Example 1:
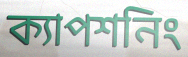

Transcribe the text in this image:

ক্যাপশনিং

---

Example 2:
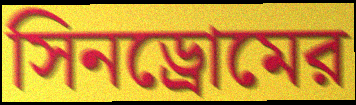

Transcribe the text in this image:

সিনড্রোমের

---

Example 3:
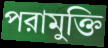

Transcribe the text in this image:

পরামুক্তি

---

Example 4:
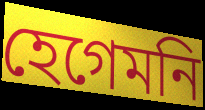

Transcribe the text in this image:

হেগেমনি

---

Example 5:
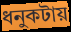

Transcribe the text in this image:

ধনুকটায়